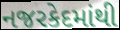
નજરકેદમાંથી